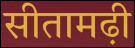
सीतामढ़ी